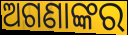
ଅଗଣାଙ୍କର